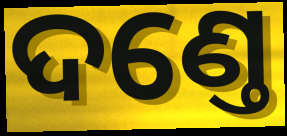
ଦଣ୍ତେ